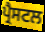
ਪ੍ਰੈਸਟਲ